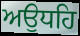
ਅਉਧਹਿ